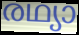
രഥ്യാ